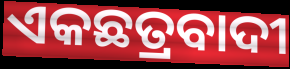
ଏକଛତ୍ରବାଦୀ